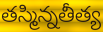
తస్మిన్నతీత్య